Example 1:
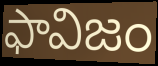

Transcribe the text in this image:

ఫావిజం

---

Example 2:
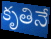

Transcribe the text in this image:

కృతినే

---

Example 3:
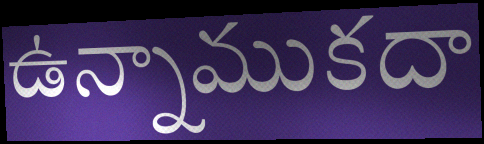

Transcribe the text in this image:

ఉన్నాముకదా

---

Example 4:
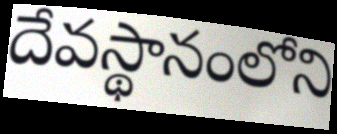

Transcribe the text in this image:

దేవస్థానంలోని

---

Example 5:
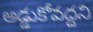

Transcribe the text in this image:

అడ్డుకోవద్దని